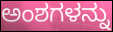
ಅಂಶಗಳನ್ನು